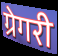
ग्रेगरी